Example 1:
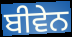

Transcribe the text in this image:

ਬੀਵੇਨ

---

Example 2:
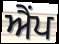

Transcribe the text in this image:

ਐਂਪ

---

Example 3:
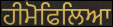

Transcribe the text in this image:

ਹੀਮੋਫਿਲਿਆ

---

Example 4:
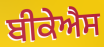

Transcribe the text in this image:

ਬੀਕੇਐਸ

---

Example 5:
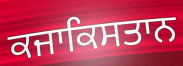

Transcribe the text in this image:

ਕਜਾਕਿਸਤਾਨ